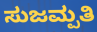
ಸುಜಮ್ಪತಿ